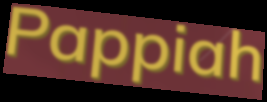
Pappiah